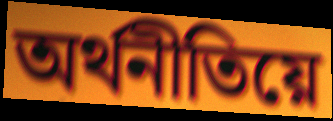
অৰ্থনীতিয়ে